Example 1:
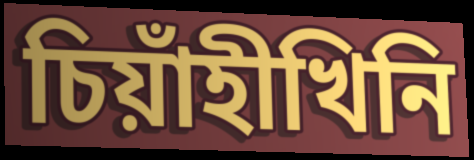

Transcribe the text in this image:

চিয়াঁহীখিনি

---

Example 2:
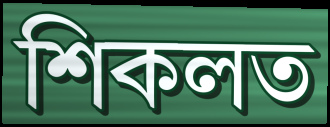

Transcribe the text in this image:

শিকলত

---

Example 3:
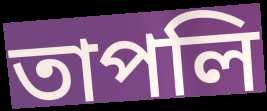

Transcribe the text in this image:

তাপলি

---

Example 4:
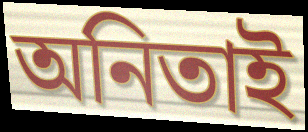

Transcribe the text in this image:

অনিতাই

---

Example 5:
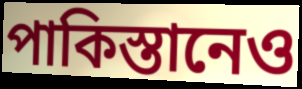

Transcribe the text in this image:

পাকিস্তানেও